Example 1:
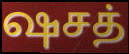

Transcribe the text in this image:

ஷசத்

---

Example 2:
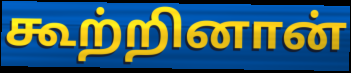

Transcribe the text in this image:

கூற்றினான்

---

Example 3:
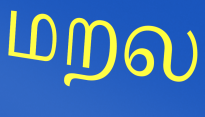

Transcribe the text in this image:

மறல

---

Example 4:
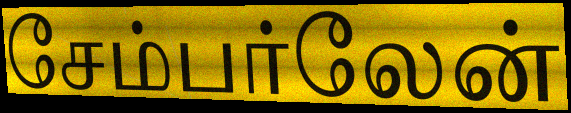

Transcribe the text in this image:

சேம்பர்லேன்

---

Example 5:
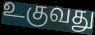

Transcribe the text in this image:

உகுவது